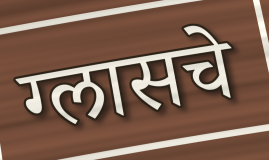
ग्लासचे